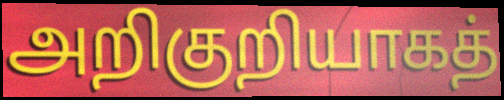
அறிகுறியாகத்